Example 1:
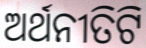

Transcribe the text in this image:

ଅର୍ଥନୀତିଟି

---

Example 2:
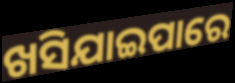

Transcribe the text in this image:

ଖସିଯାଇପାରେ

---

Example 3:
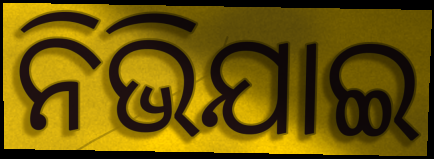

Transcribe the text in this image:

ନିଭିଯାଇ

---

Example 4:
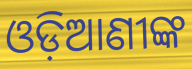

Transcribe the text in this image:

ଓଡ଼ିଆଣୀଙ୍କ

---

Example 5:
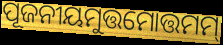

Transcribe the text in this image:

ପୂଜନୀୟମୁତ୍ତମୋତ୍ତମମ୍